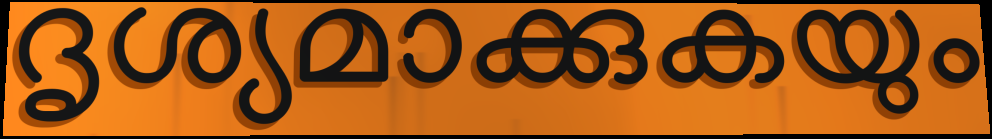
ദൃശ്യമാക്കുകയും